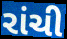
રાંચી